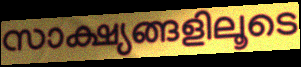
സാക്ഷ്യങ്ങളിലൂടെ